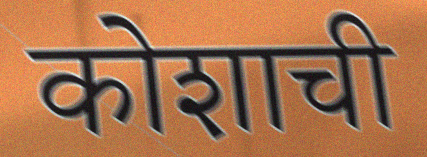
कोशाची